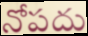
నోపదు